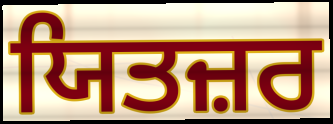
ਯਿਤਜ਼ਰ